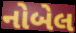
નોબેલ